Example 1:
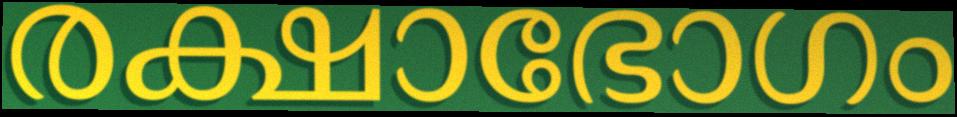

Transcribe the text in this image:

രക്ഷാഭോഗം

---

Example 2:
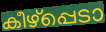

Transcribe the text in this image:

കീഴ്പ്പെടാ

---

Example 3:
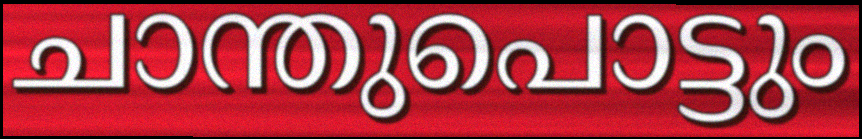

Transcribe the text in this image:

ചാന്തുപൊട്ടും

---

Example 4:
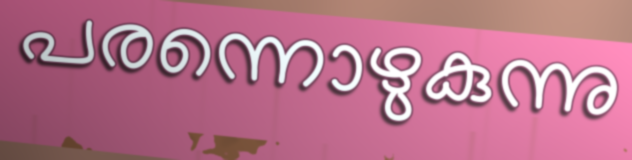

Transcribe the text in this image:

പരന്നൊഴുകുന്നു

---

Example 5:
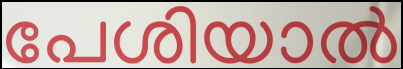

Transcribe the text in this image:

പേശിയാൽ